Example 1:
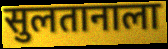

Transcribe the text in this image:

सुलतानाला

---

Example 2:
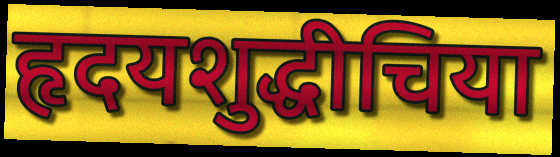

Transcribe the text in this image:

हृदयशुद्धीचिया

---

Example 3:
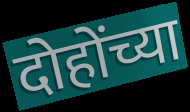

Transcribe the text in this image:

दोहोंच्या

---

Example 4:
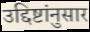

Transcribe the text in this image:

उद्दिष्टांनुसार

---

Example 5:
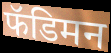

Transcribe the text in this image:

फॅडिमन